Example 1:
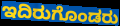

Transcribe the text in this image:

ಇದಿರುಗೊಂಡರು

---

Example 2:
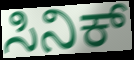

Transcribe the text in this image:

ಸಿನಿಕ್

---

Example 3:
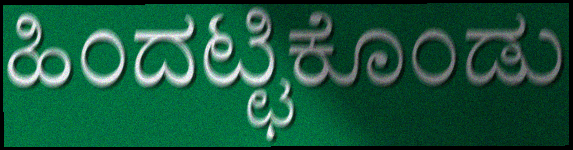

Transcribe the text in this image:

ಹಿಂದಟ್ಟಿಕೊಂಡು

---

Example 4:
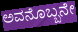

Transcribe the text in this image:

ಅವನೊಬ್ಬನೇ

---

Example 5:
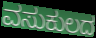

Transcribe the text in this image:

ವಸುಕುಲದ